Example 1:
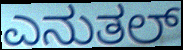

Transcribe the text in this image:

ಎನುತಲ್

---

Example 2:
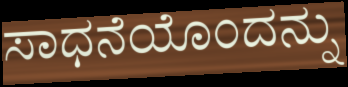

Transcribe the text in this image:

ಸಾಧನೆಯೊಂದನ್ನು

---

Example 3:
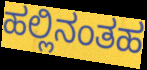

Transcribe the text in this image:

ಹಲ್ಲಿನಂತಹ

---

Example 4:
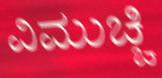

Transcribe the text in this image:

ವಿಮುಚ್ಚಿ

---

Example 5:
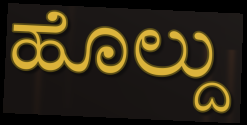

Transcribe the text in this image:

ಹೊಲ್ದು